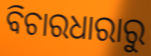
ବିଚାରଧାରାରୁ